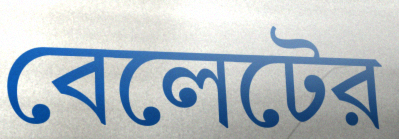
বেলেটের